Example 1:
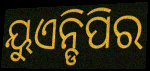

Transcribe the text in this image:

ୟୁଏନ୍ଡିପିର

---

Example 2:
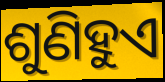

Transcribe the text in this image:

ଶୁଣିହୁଏ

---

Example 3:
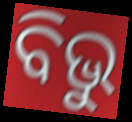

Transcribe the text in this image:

ବିଭୁ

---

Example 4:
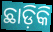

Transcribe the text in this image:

ଛାଡ଼ିକି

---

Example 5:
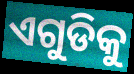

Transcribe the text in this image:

ଏଗୁଡିକୁ